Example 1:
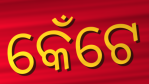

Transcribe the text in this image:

କେଁଟେ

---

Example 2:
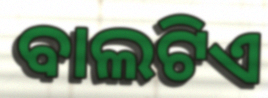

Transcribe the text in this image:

ବାଲଟିଏ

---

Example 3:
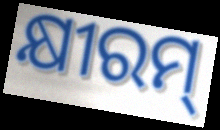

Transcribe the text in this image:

କ୍ଷୀରମ୍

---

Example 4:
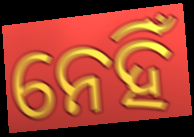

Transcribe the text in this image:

ନେହିଁ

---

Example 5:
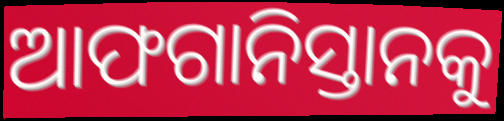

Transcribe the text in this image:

ଆଫଗାନିସ୍ତାନକୁ